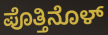
ಪೊತ್ತಿನೊಳ್